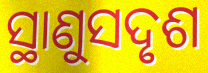
ସ୍ଥାଣୁସଦୃଶ